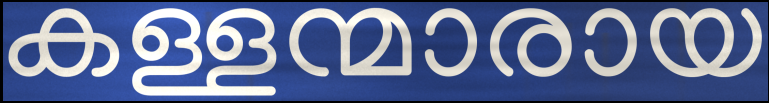
കള്ളന്മാരായ